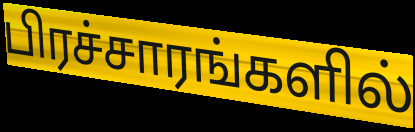
பிரச்சாரங்களில்